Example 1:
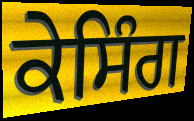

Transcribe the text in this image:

ਕੇਸਿੰਗ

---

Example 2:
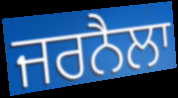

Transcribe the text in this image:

ਜਰਨੈਲਾ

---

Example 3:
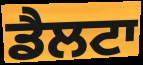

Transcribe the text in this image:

ਡੈਲਟਾ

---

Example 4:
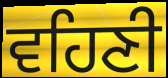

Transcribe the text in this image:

ਵਹਿਣੀ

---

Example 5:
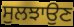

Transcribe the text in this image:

ਸੁਲਝਾਉਣ